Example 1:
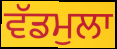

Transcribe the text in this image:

ਵੱਡਮੁਲਾ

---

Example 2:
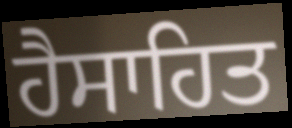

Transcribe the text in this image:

ਹੈਸਾਹਿਤ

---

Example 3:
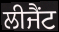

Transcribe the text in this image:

ਲੀਜੈਂਟ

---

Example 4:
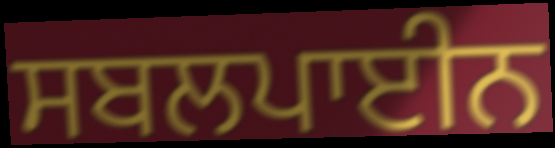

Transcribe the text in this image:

ਸਬਲਪਾਈਨ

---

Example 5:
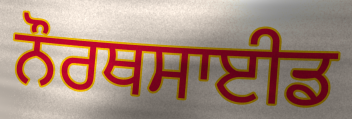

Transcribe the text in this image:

ਨੌਰਥਸਾਈਡ